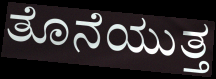
ತೊನೆಯುತ್ತ